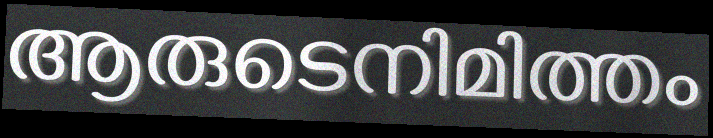
ആരുടെനിമിത്തം